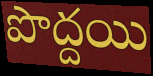
పొద్దయి